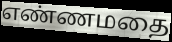
எண்ணமதை